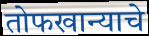
तोफखान्याचे